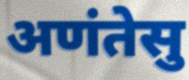
अणंतेसु